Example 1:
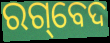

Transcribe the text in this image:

ରଗ୍‌ବେଦ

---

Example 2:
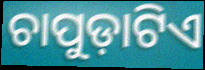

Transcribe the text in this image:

ଚାପୁଡ଼ାଟିଏ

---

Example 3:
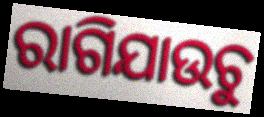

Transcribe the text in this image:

ରାଗିଯାଉଚୁ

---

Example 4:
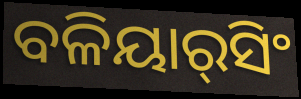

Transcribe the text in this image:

ବଳିୟାର୍‌ସିଂ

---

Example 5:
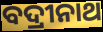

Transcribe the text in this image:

ବଦ୍ରୀନାଥ